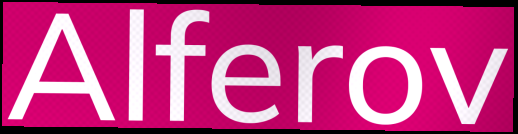
Alferov